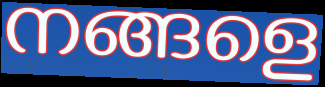
നങ്ങളെ